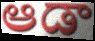
ఆడా